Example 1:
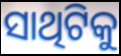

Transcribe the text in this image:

ସାଥିଟିକୁ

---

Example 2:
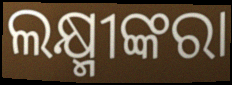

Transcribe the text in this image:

ଲକ୍ଷ୍ମୀଙ୍କରା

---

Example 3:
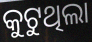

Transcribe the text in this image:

କୁଟୁଥିଲା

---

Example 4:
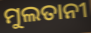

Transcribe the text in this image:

ମୁଲତାନୀ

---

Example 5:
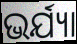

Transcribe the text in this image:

ଭର୍ଯ୍ୟା